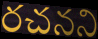
రచనని